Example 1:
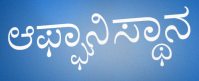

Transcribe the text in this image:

ಆಫ್ಘಾನಿಸ್ಥಾನ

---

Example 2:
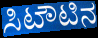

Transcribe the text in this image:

ಸಿಟೌಟಿನ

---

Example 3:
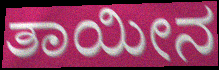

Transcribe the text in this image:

ತಾಯೀನ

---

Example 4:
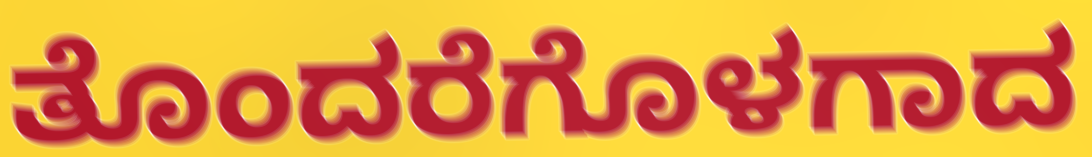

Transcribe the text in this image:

ತೊಂದರೆಗೊಳಗಾದ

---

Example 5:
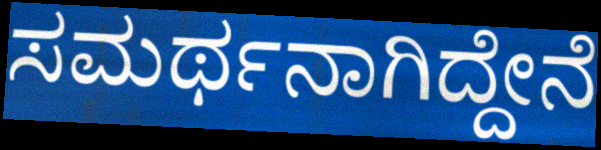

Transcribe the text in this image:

ಸಮರ್ಥನಾಗಿದ್ದೇನೆ